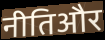
नीतिऔर